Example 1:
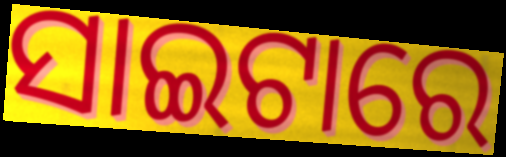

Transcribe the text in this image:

ସାଇଟାରେ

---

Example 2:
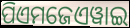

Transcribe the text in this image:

ପିଏମଜେଏୱାଇ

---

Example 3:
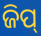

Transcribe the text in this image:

ଜିପ୍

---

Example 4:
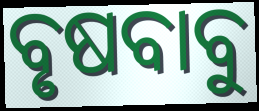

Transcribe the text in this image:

ବୃଷବାବୁ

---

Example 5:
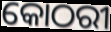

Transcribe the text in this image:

କୋଠରୀ